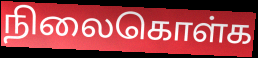
நிலைகொள்க